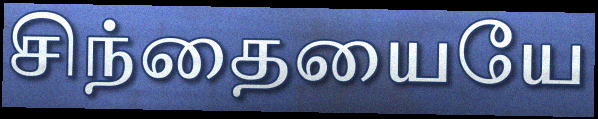
சிந்தையையே